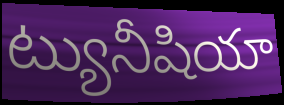
ట్యునీషియా